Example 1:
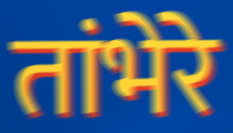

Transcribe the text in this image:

तांभेरे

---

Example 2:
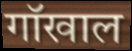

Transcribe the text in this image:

गॉखाल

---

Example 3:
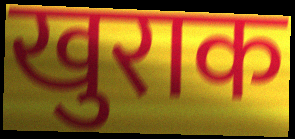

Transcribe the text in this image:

खुराक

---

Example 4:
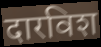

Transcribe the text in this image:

दारविश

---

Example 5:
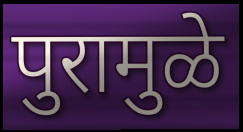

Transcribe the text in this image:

पुरामुळे